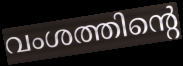
വംശത്തിന്റെ